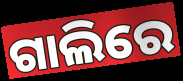
ଗାଲିରେ